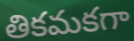
తికమకగా